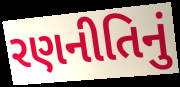
રણનીતિનું